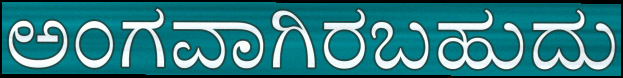
ಅಂಗವಾಗಿರಬಹುದು